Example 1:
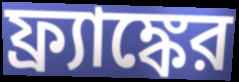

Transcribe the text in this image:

ফ্র্যাঙ্কের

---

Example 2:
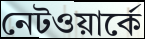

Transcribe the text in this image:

নেটওয়ার্কে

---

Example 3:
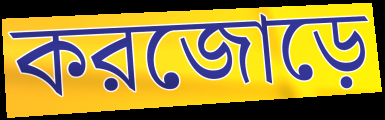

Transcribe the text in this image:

করজোড়ে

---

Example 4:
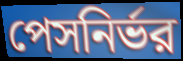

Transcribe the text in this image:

পেসনির্ভর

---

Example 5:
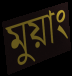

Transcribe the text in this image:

মুয়াং